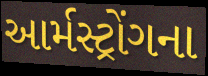
આર્મસ્ટ્રોંગના